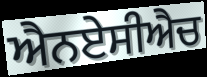
ਐਨਏਸੀਐਚ